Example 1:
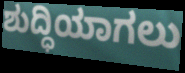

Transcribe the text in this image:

ಶುದ್ಧಿಯಾಗಲು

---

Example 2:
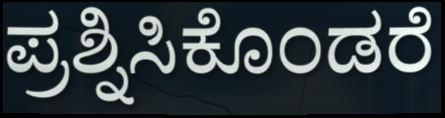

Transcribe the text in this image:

ಪ್ರಶ್ನಿಸಿಕೊಂಡರೆ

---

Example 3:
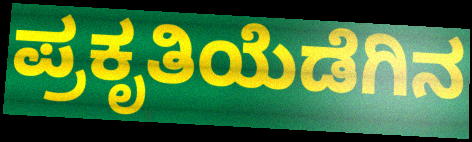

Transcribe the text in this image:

ಪ್ರಕೃತಿಯೆಡೆಗಿನ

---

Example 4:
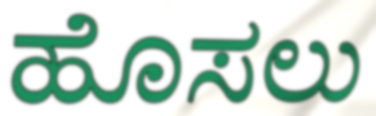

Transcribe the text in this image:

ಹೊಸಲು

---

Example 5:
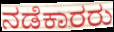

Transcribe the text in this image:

ನಡೆಕಾರರು